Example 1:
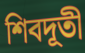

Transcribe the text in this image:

শিবদূতী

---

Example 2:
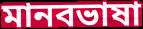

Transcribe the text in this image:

মানবভাষা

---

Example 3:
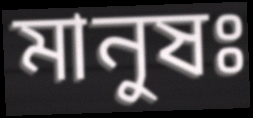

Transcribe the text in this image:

মানুষঃ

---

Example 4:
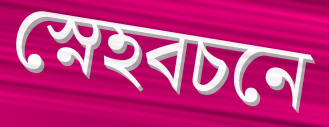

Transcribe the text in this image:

স্নেহবচনে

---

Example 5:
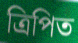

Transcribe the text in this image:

ত্রিপিত